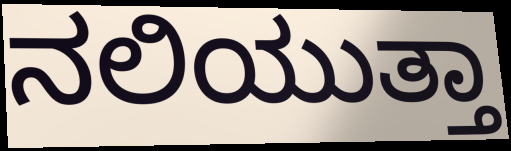
ನಲಿಯುತ್ತಾ